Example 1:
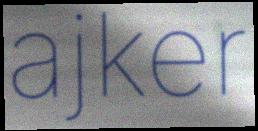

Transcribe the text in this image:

ajker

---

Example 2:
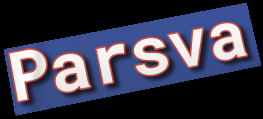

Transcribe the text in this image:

Parsva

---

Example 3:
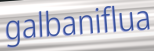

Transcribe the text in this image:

galbaniflua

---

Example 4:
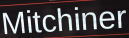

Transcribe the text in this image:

Mitchiner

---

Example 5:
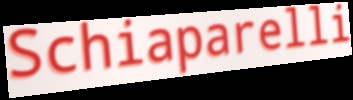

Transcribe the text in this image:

Schiaparelli